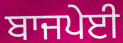
ਬਾਜਪੇਈ